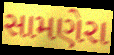
સામણેરા